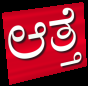
ಆತ್ತೆ